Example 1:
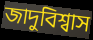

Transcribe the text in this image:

জাদুবিশ্বাস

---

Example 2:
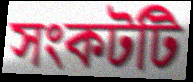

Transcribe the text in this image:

সংকটটি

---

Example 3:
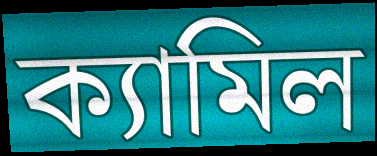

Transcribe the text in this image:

ক্যামিল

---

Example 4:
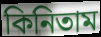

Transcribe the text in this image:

কিনিতাম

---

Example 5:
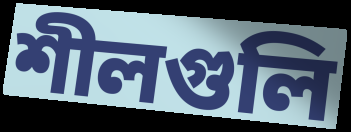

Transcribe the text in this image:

শীলগুলি